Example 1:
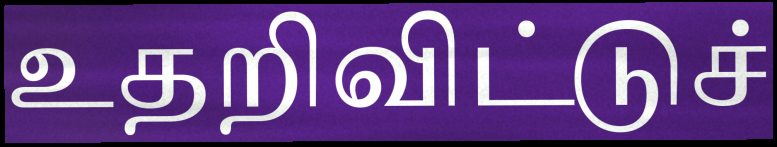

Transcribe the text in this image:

உதறிவிட்டுச்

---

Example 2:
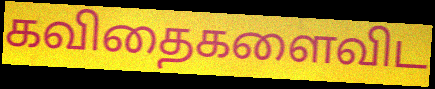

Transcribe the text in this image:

கவிதைகளைவிட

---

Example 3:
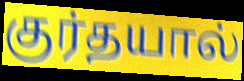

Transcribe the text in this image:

குர்தயால்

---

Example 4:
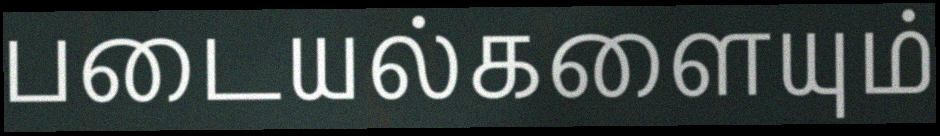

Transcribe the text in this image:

படையல்களையும்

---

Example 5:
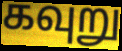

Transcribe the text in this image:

கவுறு